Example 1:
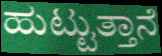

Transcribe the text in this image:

ಹುಟ್ಟುತ್ತಾನೆ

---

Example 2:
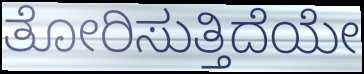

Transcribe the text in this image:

ತೋರಿಸುತ್ತಿದೆಯೇ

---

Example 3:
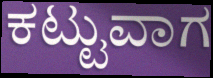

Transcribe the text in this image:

ಕಟ್ಟುವಾಗ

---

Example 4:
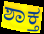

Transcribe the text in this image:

ಶಾಕ್ತ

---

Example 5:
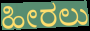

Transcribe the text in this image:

ಹೀರಲು